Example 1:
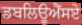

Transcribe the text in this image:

ਡਬਲਿਊਐੱਸਏ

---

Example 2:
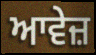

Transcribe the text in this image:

ਆਵੇਜ਼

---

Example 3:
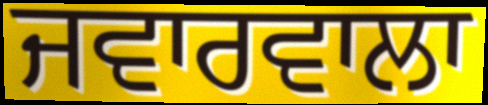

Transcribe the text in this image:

ਜਵਾਰਵਾਲਾ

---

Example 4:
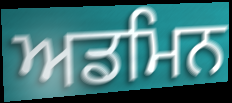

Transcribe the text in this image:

ਅਡਮਿਨ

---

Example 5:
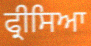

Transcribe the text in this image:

ਫ੍ਰੀਸਿਆ